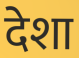
देशा